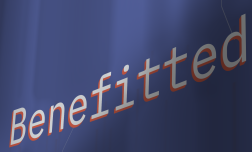
Benefitted